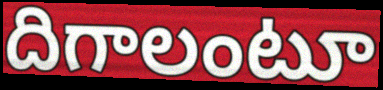
దిగాలంటూ